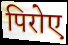
पिरोए